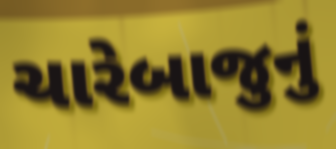
ચારેબાજુનું